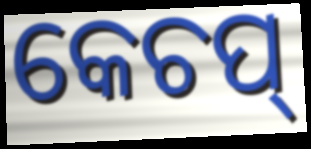
କେଚପ୍